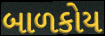
બાળકોય